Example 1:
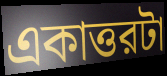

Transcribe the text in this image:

একাত্তরটা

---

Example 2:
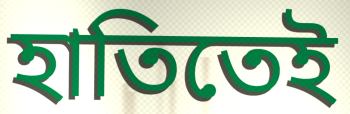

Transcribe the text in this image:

হাতিতেই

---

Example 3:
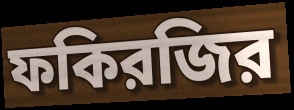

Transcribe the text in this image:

ফকিরজির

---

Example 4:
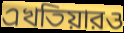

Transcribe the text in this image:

এখতিয়ারও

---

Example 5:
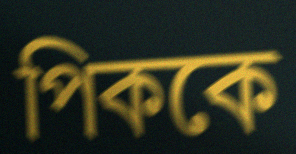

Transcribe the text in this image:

পিককে